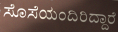
ಸೊಸೆಯಂದಿರಿದ್ದಾರೆ